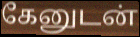
கேனுடன்